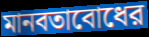
মানবতাবোধের